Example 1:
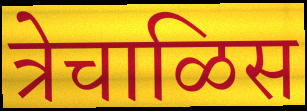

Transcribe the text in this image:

त्रेचाळिस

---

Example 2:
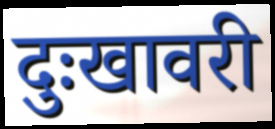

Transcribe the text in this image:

दुःखावरी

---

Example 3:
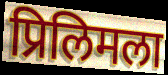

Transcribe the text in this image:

प्रिलिमला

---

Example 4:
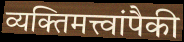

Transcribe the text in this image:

व्यक्तिमत्त्वांपैकी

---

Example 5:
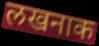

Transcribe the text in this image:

लखनाक